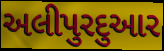
અલીપુરદુઆર